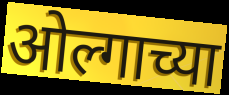
ओल्गाच्या